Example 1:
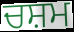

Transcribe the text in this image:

ਚਸ਼ਮ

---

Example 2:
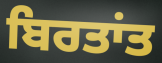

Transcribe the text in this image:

ਬਿਰਤਾਂਤ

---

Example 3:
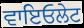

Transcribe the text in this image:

ਵਾਇਓਲੇਟ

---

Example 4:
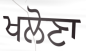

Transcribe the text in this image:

ਖਲੋਣਾ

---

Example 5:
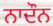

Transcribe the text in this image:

ਨਾਦੌਨ